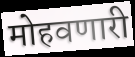
मोहवणारी